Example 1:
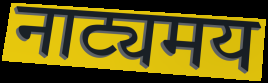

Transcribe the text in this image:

नाट्यमय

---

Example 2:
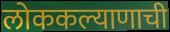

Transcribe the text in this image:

लोककल्याणाची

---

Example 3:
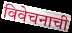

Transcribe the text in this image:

विवेचनाची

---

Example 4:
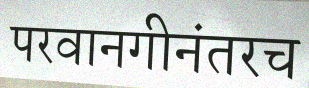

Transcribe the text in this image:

परवानगीनंतरच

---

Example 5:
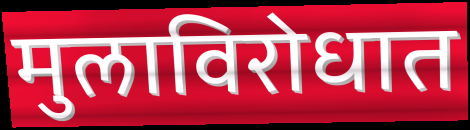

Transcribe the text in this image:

मुलाविरोधात